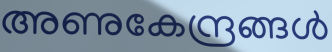
അണുകേന്ദ്രങ്ങൾ